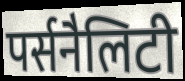
पर्सनैलिटी